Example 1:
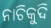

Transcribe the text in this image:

ନାଚିକୁଦି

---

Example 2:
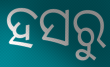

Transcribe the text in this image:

ହସରୁ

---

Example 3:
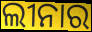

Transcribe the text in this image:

ଲୀନାର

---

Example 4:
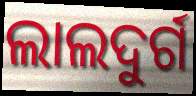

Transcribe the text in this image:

ଲାଲଦୁର୍ଗ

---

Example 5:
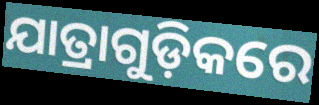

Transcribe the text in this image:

ଯାତ୍ରାଗୁଡ଼ିକରେ